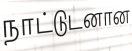
நாட்டுடனான